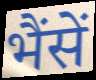
भैंसें